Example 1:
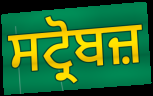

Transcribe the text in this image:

ਸਟ੍ਰੋਬਜ਼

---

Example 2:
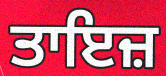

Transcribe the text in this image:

ਤਾਇਜ਼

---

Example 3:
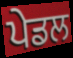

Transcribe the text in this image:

ਪੇਡਲ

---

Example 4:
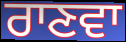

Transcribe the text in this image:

ਰਾਣਵਾ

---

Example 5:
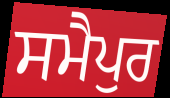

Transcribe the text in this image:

ਸਮੈਪੁਰ